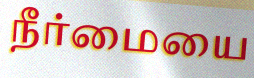
நீர்மையை